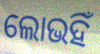
ଲୋଭହିଁ